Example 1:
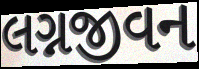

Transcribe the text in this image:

લગ્નજીવન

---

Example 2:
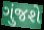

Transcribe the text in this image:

ગુંજશે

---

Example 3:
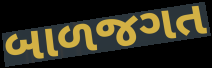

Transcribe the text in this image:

બાળજગત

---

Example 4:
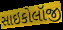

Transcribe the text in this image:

સાઇકોલૉજી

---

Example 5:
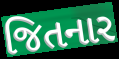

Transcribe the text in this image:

જિતનાર